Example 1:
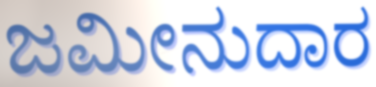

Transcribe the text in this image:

ಜಮೀನುದಾರ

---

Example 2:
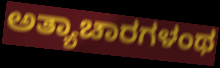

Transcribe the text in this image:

ಅತ್ಯಾಚಾರಗಳಂಥ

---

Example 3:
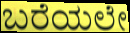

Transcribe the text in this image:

ಬರೆಯಲೇ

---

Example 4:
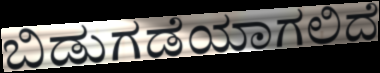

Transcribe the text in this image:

ಬಿಡುಗಡೆಯಾಗಲಿದೆ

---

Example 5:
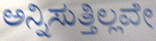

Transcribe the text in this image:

ಅನ್ನಿಸುತ್ತಿಲ್ಲವೇ